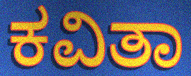
ಕವಿತಾ